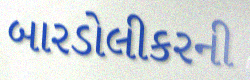
બારડોલીકરની